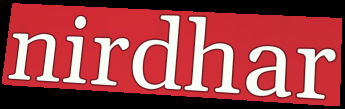
nirdhar